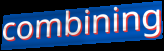
combining